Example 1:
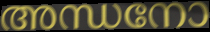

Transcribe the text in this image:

അന്ധനോ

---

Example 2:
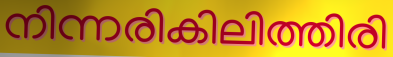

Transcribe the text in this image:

നിന്നരികിലിത്തിരി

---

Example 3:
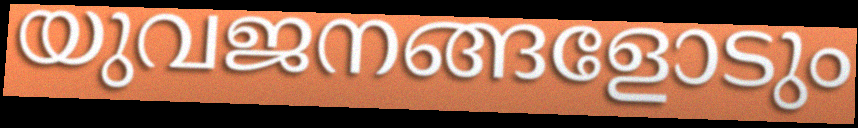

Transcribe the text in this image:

യുവജനങ്ങളോടും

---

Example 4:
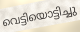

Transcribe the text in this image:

വെട്ടിയൊട്ടിച്ചു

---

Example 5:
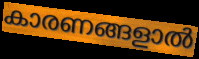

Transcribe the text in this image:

കാരണങ്ങളാൽ